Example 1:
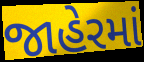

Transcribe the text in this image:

જાહેરમાં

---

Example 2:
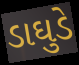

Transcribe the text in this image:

ડાઘુડે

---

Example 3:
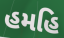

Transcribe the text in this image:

હમહિ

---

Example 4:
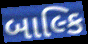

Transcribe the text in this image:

બાલ્કિ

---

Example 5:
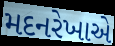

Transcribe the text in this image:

મદનરેખાએ